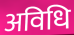
अविधि